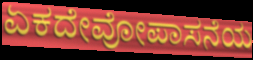
ಏಕದೇವೋಪಾಸನೆಯ